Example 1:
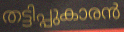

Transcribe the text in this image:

തട്ടിപ്പുകാരൻ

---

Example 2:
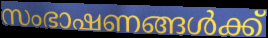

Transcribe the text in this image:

സംഭാഷണങ്ങൾക്ക്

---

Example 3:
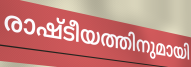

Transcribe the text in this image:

രാഷ്ടീയത്തിനുമായി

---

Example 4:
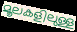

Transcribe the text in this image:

മൂലകളിലുള്ള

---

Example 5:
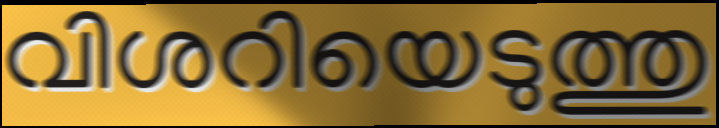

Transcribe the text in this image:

വിശറിയെടുത്തു